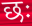
छः